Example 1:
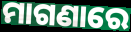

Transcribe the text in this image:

ମାଗଣାରେ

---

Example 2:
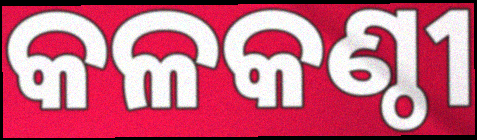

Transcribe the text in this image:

କଳକଣ୍ଠୀ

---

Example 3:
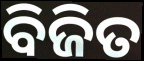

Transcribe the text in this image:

ବିଜିତ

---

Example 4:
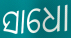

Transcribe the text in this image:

ସାଧୋ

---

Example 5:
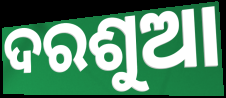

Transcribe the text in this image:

ଦରଶୁଆ